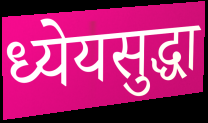
ध्येयसुद्धा